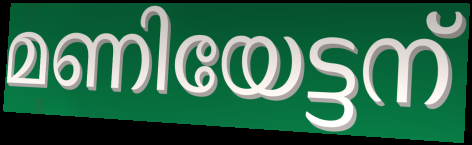
മണിയേട്ടന്